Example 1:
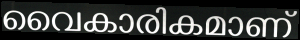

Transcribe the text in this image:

വൈകാരികമാണ്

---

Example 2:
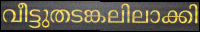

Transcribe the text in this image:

വീട്ടുതടങ്കലിലാക്കി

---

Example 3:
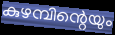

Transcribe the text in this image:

കുഴമ്പിന്റെയും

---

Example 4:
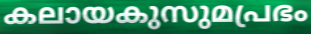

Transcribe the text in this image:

കലായകുസുമപ്രഭം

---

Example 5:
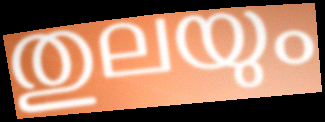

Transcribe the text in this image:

തുലയും